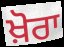
ਖ਼ੋਰਾ